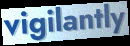
vigilantly